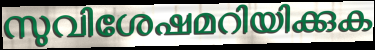
സുവിശേഷമറിയിക്കുക